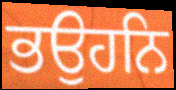
ਭਉਹਨਿ